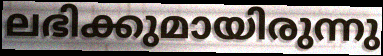
ലഭിക്കുമായിരുന്നു